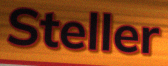
Steller